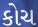
કોચ